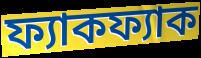
ফ্যাকফ্যাক